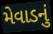
મેવાડનું